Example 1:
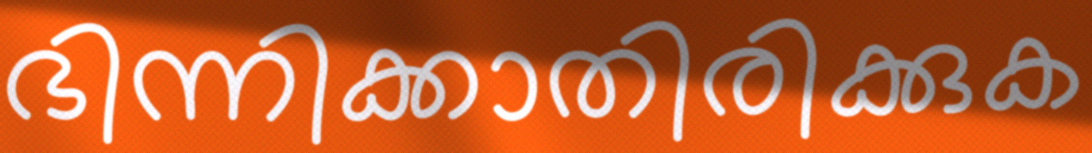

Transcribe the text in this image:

ഭിന്നിക്കാതിരിക്കുക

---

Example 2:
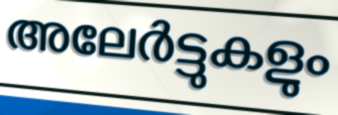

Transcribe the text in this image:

അലേർട്ടുകളും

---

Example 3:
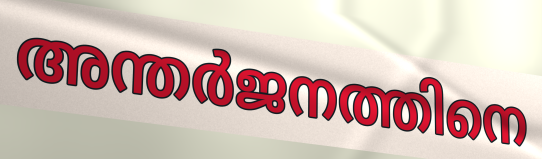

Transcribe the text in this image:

അന്തർജനത്തിനെ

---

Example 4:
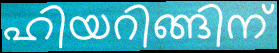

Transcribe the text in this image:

ഹിയറിങ്ങിന്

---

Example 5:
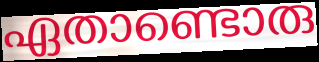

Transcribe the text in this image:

ഏതാണ്ടൊരു